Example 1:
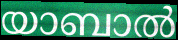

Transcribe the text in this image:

യാബാൽ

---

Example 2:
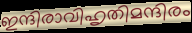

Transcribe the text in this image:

ഇന്ദിരാവിഹൃതിമന്ദിരം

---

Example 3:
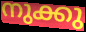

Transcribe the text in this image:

നുക്കു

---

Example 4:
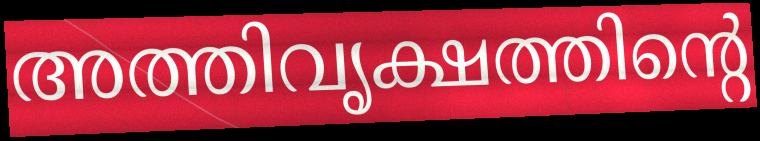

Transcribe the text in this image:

അത്തിവൃക്ഷത്തിന്റെ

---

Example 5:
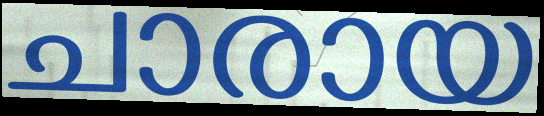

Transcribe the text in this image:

ചാരായ